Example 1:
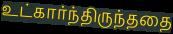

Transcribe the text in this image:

உட்கார்ந்திருந்ததை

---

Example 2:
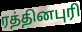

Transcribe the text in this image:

ரத்தினபுரி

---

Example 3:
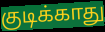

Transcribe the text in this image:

குடிக்காது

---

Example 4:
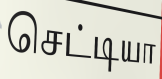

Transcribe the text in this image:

செட்டியா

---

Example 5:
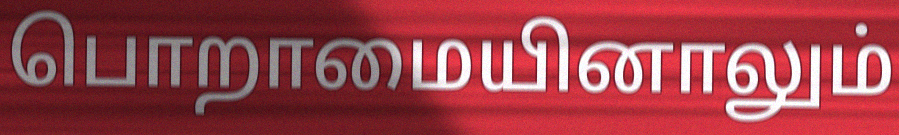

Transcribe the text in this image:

பொறாமையினாலும்